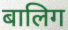
बालिग